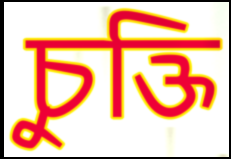
চুক্তি